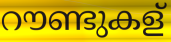
റൗണ്ടുകള്